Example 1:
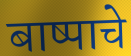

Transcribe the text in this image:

बाष्पाचे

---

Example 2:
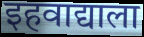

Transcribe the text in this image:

इहवाद्याला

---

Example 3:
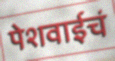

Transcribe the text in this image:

पेशवाईचं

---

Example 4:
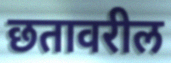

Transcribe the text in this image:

छतावरील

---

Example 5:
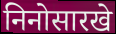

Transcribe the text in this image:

निनोसारखे